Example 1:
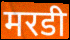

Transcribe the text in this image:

मरडी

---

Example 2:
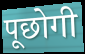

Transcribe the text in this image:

पूछोगी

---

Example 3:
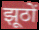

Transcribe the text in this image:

झूठों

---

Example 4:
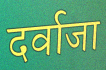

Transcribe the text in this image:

दर्वाजा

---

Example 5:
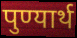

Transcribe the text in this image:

पुण्यार्थ